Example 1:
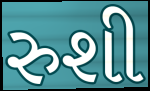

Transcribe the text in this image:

રુશી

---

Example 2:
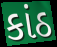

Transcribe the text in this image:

કાંઠ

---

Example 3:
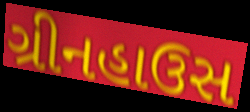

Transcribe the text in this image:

ગ્રીનહાઉસ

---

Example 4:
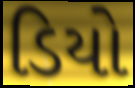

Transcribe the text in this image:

ડિયો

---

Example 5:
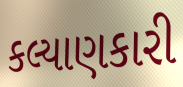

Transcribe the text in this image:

કલ્યાણકારી